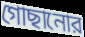
গোছানোর